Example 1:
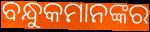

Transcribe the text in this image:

ବନ୍ଧୁକମାନଙ୍କର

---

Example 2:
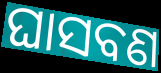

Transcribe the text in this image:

ଘାସବଣ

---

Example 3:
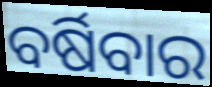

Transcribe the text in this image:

ବର୍ଷିବାର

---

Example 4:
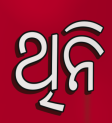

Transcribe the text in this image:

ଥିନି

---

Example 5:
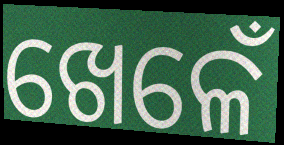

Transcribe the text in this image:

ଖେଳେଁ